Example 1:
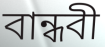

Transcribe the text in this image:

বান্ধবী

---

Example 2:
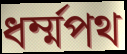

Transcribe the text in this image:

ধর্ম্মপথ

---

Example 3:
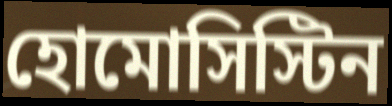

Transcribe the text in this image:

হোমোসিস্টিন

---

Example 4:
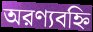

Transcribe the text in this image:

অরণ্যবহ্নি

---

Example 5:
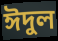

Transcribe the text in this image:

ঈদুল